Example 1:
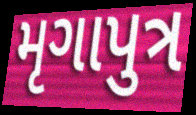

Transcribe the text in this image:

મૃગાપુત્ર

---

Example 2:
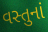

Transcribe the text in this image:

વસ્તુનાં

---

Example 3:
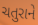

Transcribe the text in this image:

ચતુરાને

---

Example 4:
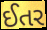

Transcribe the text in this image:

ઈતર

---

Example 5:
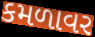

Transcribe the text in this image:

કમળાવર